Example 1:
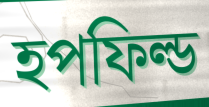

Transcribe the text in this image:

হপফিল্ড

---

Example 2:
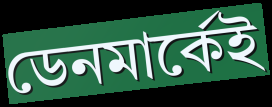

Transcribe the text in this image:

ডেনমার্কেই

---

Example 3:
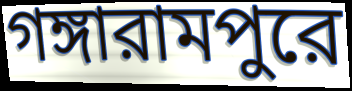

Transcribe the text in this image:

গঙ্গারামপুরে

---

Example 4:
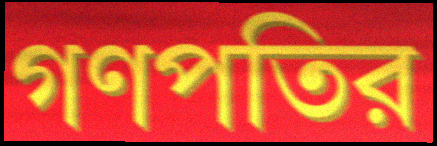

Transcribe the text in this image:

গণপতির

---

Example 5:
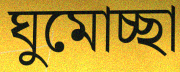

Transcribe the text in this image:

ঘুমোচ্ছা